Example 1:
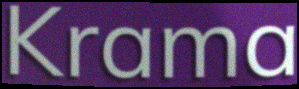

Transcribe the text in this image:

Krama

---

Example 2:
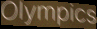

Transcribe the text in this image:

Olympics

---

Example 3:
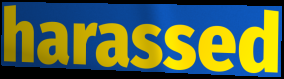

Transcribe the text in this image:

harassed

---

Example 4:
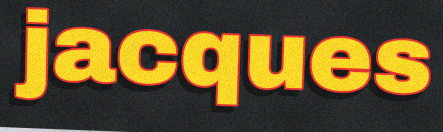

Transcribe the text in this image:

jacques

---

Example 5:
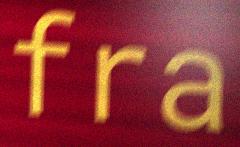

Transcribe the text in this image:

fra